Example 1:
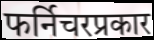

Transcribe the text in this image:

फर्निचरप्रकार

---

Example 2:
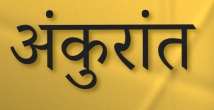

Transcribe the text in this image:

अंकुरांत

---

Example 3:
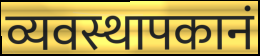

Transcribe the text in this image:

व्यवस्थापकानं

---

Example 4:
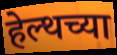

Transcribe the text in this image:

हेल्थच्या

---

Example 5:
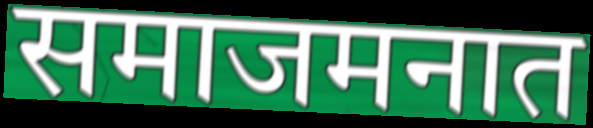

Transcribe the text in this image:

समाजमनात